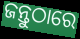
ଜନ୍ତୁଠାରେ